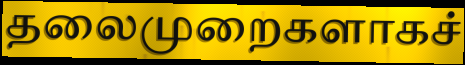
தலைமுறைகளாகச்